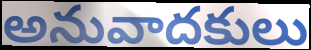
అనువాదకులు